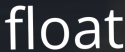
float